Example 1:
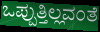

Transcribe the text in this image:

ಒಪ್ಪುತ್ತಿಲ್ಲವಂತೆ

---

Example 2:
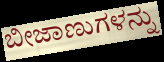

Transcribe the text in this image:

ಬೀಜಾಣುಗಳನ್ನು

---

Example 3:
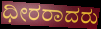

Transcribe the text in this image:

ಧೀರರಾದರು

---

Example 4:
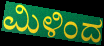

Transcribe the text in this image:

ಮಿಳಿಂದ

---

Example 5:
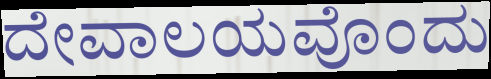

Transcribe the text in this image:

ದೇವಾಲಯವೊಂದು